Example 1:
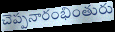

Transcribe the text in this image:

చెప్పనారంభింతురు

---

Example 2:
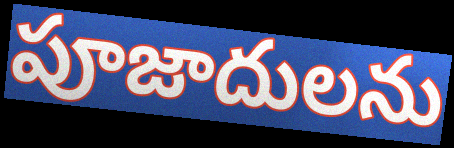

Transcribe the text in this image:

పూజాదులను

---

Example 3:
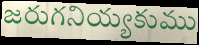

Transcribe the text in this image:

జరుగనియ్యకుము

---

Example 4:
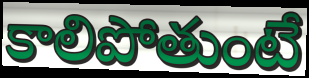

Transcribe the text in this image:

కాలిపోతుంటే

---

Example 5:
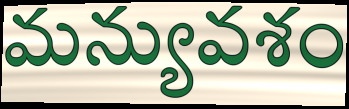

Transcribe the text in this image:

మన్యువశం